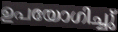
ഉപയോഗിച്ചു്